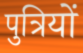
पुत्रियों